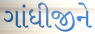
ગાંધીજીને